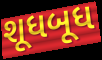
શૂધબૂધ